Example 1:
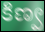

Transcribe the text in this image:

కిణ్వ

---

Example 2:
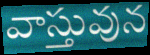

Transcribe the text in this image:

వాస్తువున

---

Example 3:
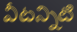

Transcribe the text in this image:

వీటన్నిటి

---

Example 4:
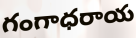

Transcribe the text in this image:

గంగాధరాయ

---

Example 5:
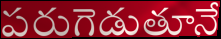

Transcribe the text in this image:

పరుగెడుతూనే